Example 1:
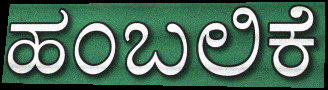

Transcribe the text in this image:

ಹಂಬಲಿಕೆ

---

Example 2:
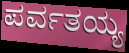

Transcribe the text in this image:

ಪರ್ವತಯ್ಯ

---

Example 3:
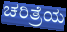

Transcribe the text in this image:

ಚರಿತ್ರೆಯ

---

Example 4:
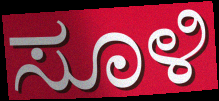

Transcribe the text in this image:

ಸೂಳಿ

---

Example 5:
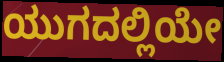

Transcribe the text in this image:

ಯುಗದಲ್ಲಿಯೇ